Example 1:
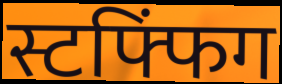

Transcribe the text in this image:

स्टफ्फिंग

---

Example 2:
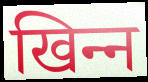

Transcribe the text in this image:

खिन्‍न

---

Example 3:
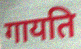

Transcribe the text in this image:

गायति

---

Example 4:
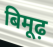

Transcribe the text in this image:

बिमूढ़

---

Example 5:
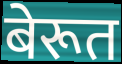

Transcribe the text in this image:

बेरूत